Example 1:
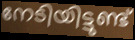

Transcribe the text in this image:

നേടിയിട്ടുണ്ട്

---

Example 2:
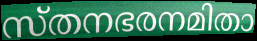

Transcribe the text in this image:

സ്തനഭരനമിതാ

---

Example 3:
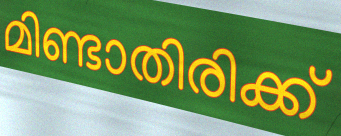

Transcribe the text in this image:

മിണ്ടാതിരിക്ക്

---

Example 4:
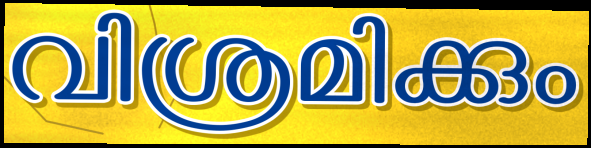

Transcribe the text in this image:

വിശ്രമിക്കും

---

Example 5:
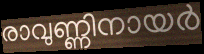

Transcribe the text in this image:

രാവുണ്ണിനായർ